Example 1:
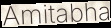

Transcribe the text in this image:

Amitabha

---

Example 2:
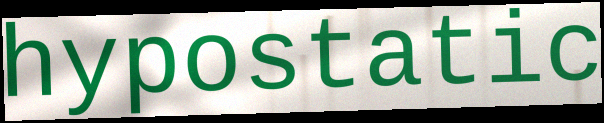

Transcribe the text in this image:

hypostatic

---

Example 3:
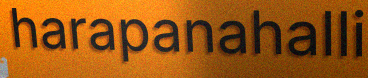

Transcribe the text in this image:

harapanahalli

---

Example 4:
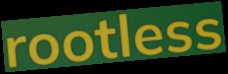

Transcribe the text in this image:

rootless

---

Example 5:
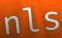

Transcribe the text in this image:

nls